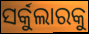
ସର୍କୁଲାରକୁ